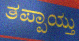
ತಪ್ಪಾಯ್ತು